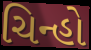
ચિન્હો